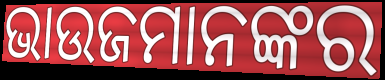
ଭାଉଜମାନଙ୍କର